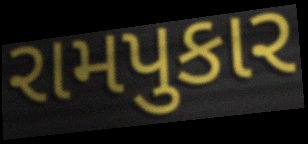
રામપુકાર